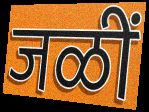
जळीं